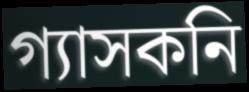
গ্যাসকনি